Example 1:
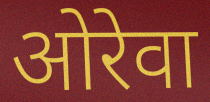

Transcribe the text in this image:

ओरेवा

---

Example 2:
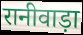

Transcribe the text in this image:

रानीवाड़ा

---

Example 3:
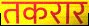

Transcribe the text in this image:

तकरार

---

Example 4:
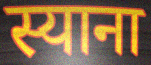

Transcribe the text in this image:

स्याना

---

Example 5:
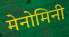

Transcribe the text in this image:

मेनोमिनी